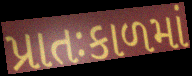
પ્રાતઃકાળમાં